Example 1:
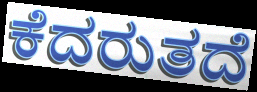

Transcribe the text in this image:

ಕೆದರುತದೆ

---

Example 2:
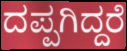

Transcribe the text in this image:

ದಪ್ಪಗಿದ್ದರೆ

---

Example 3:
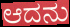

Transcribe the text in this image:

ಆದನು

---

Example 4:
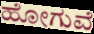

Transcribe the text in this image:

ಹೋಗುವೆ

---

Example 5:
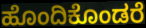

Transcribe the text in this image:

ಹೊಂದಿಕೊಂಡರೆ